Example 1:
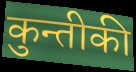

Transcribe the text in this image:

कुन्तीकी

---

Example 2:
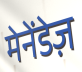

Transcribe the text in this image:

मेनेंडेज़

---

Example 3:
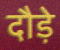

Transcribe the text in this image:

दौड़े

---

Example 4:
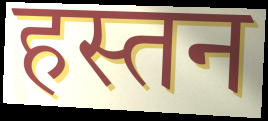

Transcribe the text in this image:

हस्तन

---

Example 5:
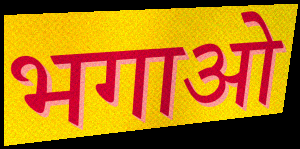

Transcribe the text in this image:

भगाओ